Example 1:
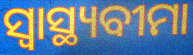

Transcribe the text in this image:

ସ୍ଵାସ୍ଥ୍ୟବୀମା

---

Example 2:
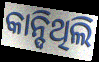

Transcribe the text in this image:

କାନ୍ଦିଥିଲି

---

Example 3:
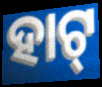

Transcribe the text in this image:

ହାଟ୍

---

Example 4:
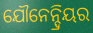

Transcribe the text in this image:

ଯୌନେନ୍ଦ୍ରିୟର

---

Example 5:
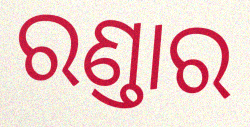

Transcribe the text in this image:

ରଣ୍ଡାର